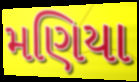
મણિયા